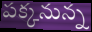
పక్కనున్న